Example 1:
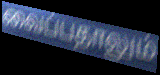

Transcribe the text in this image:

வைப்பதாலும்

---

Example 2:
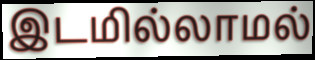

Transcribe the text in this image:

இடமில்லாமல்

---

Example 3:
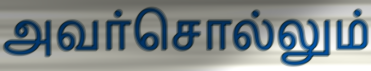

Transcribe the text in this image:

அவர்சொல்லும்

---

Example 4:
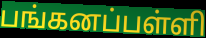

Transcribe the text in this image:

பங்கனப்பள்ளி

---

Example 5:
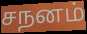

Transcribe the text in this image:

சநனம்